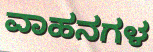
ವಾಹನಗಳ